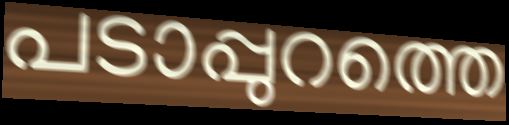
പടാപ്പുറത്തെ